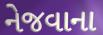
નેજવાના